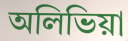
অলিভিয়া